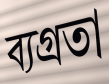
ব্যগ্রতা